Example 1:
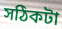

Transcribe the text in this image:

সঠিকটা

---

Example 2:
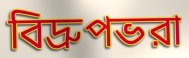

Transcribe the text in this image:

বিদ্রুপভরা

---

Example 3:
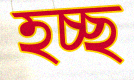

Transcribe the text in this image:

হচ্ছ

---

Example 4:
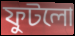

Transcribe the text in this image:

ফুটলো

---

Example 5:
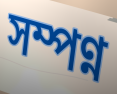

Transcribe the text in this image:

সম্পণ্ন